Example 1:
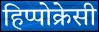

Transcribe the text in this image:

हिप्पोक्रेसी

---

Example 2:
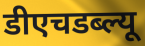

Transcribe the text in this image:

डीएचडब्ल्यू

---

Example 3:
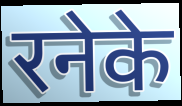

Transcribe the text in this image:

रनेके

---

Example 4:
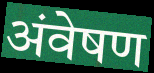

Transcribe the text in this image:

अंवेषण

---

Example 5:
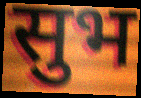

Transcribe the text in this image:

सुभ